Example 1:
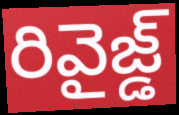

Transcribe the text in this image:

రివైజ్డ్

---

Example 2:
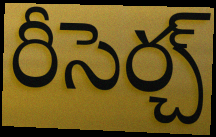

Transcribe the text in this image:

రీసెర్చ్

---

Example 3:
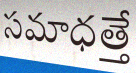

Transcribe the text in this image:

సమాధత్తే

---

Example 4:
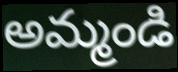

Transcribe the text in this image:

అమ్మండి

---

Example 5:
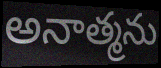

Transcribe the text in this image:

అనాత్మను